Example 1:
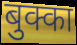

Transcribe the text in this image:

बुक्का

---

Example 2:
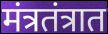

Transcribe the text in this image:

मंत्रतंत्रात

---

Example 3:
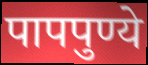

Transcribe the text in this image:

पापपुण्ये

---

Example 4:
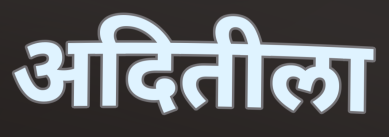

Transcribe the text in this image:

अदितीला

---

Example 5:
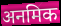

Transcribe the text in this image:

अनमिक